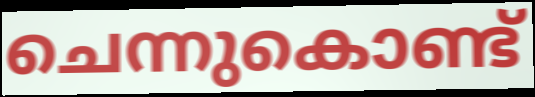
ചെന്നുകൊണ്ട്